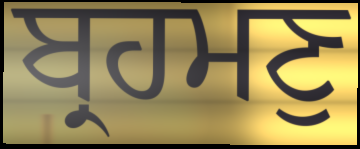
ਬ੍ਰਹਮਣੁ